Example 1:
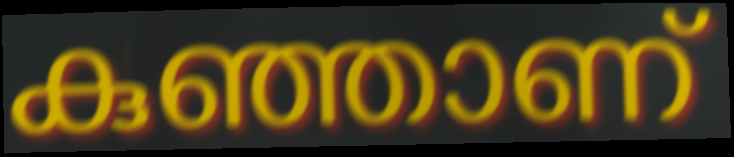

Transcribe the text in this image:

കുഞ്ഞാണ്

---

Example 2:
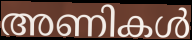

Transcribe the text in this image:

അണികൾ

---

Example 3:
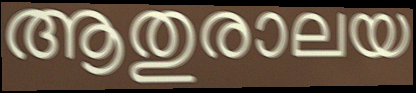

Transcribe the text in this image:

ആതുരാലയ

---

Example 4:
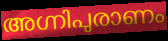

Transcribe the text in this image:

അഗ്നിപുരാണം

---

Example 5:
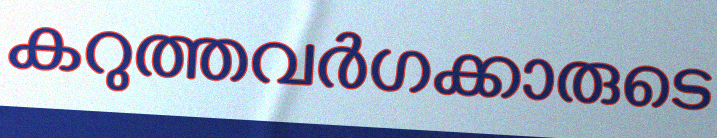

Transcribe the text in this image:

കറുത്തവർഗക്കാരുടെ